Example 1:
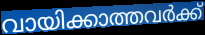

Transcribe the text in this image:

വായിക്കാത്തവർക്ക്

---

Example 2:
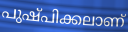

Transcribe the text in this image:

പുഷ്പിക്കലാണ്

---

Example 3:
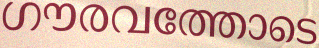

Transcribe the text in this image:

ഗൗരവത്തോടെ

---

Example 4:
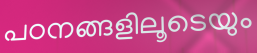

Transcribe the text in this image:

പഠനങ്ങളിലൂടെയും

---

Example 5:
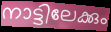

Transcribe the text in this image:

നാട്ടിലേക്കും